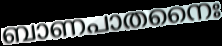
ബാണപാതനൈഃ